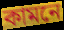
কামনে